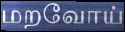
மறவோய்